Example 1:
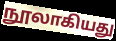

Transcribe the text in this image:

நூலாகியது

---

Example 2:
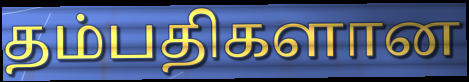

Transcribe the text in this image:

தம்பதிகளான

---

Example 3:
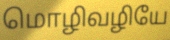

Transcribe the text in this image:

மொழிவழியே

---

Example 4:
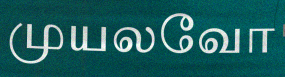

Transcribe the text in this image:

முயலவோ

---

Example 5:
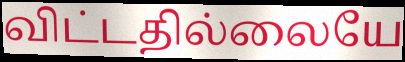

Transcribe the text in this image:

விட்டதில்லையே